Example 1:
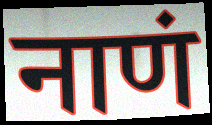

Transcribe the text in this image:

नाणं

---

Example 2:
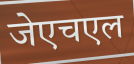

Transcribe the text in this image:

जेएचएल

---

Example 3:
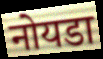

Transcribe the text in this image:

नोयडा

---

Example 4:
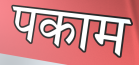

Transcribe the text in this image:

पकाम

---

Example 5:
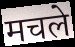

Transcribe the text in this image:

मचले